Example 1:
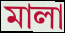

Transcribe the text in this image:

মালা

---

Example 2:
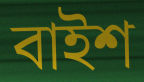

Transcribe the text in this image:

বাইশ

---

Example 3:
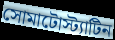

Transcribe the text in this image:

সোমাটোস্ট্যাটিন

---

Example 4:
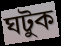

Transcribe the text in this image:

ঘটুক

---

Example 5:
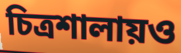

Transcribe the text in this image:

চিত্রশালায়ও